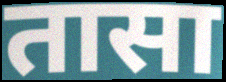
तासा